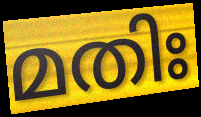
മതിഃ